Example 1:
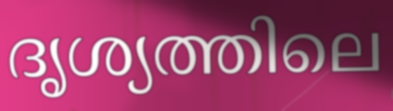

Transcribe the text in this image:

ദൃശ്യത്തിലെ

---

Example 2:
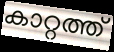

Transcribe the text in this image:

കാറ്റത്ത്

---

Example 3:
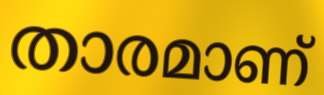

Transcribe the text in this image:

താരമാണ്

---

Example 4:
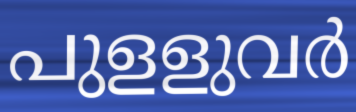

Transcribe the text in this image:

പുളളുവർ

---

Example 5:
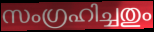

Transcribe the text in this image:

സംഗ്രഹിച്ചതും